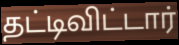
தட்டிவிட்டார்